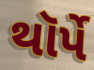
થૉર્પે